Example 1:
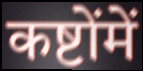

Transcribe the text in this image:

कष्टोंमें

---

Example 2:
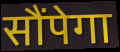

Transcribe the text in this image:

सौंपेगा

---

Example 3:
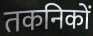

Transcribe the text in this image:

तकनिकों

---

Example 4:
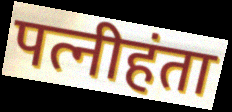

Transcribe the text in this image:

पत्नीहंता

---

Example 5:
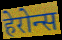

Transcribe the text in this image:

हेरोन्स